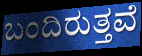
ಬಂದಿರುತ್ತವೆ